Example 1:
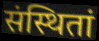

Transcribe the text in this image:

संस्थितां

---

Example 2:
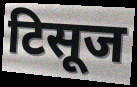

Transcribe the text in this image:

टिसूज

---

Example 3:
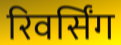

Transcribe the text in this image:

रिवर्सिंग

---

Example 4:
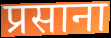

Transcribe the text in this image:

प्रसाना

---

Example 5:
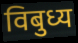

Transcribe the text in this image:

विबुध्य